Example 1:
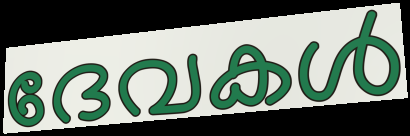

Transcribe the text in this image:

ദേവകൾ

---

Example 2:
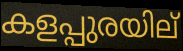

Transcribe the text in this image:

കളപ്പുരയില്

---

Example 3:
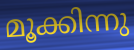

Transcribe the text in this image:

മൂക്കിന്നു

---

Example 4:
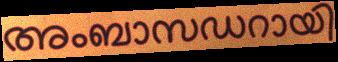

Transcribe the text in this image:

അംബാസഡറായി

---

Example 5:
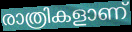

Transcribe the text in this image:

രാത്രികളാണ്